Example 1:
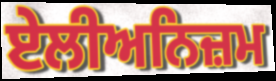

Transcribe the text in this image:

ਏਲੀਅਨਿਜ਼ਮ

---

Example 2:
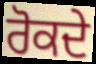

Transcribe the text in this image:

ਰੋਕਦੇ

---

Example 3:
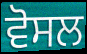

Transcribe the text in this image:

ਵੋਸਲ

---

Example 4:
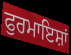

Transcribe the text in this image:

ਫੁਰਮਾਇਸ਼ਾਂ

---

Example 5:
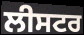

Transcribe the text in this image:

ਲੀਸਟਰ